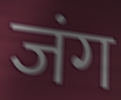
जंग